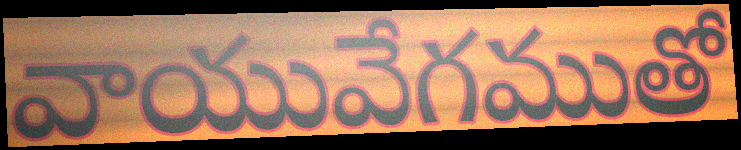
వాయువేగముతో